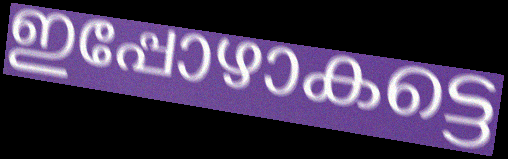
ഇപ്പോഴാകട്ടെ